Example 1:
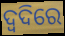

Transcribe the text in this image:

ଦ୍ଵଦିରେ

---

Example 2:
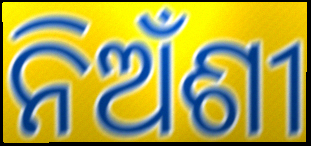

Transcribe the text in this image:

ନିଅଁଶୀ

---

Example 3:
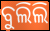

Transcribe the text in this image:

ବୁଲିଲି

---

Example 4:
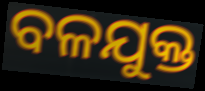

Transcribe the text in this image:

ବଳଯୁକ୍ତ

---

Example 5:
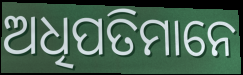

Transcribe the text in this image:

ଅଧିପତିମାନେ